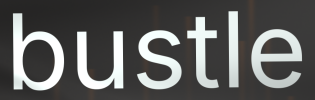
bustle